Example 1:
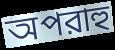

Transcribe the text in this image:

অপরাহু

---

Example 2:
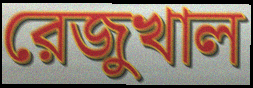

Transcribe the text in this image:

রেজুখাল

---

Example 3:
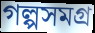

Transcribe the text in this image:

গল্পসমগ্র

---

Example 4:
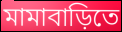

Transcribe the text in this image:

মামাবাড়িতে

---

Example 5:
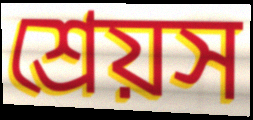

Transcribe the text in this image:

শ্রেয়স